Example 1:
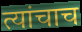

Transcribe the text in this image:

त्यांचाच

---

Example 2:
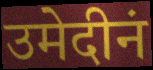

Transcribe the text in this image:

उमेदीनं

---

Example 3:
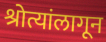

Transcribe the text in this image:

श्रोत्यांलागून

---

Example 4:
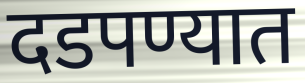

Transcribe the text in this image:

दडपण्यात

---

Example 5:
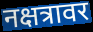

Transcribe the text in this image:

नक्षत्रावर